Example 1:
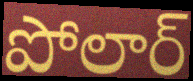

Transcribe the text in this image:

పోలార్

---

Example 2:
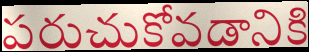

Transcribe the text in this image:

పరుచుకోవడానికి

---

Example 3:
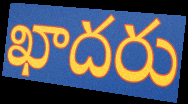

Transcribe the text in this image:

ఖాదరు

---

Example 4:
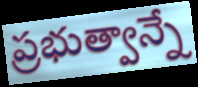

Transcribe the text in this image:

ప్రభుత్వాన్నే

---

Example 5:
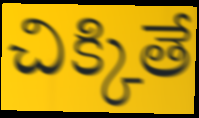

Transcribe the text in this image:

చిక్కితే